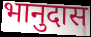
भानुदास